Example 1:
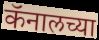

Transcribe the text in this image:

कॅनालच्या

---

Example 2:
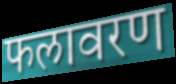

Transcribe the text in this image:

फलावरण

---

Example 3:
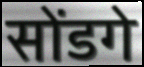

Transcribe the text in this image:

सोंडगे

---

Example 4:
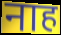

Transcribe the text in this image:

नाह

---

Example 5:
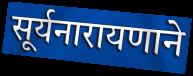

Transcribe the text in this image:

सूर्यनारायणाने